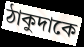
ঠাকুদাকে